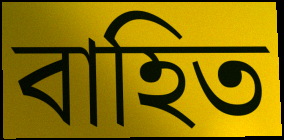
বাহিত